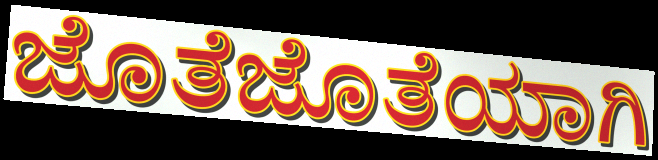
ಜೊತೆಜೊತೆಯಾಗಿ